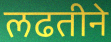
लढतीने